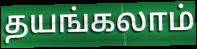
தயங்கலாம்